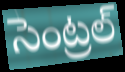
సెంట్రల్